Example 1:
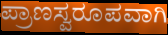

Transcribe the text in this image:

ಪ್ರಾಣಸ್ವರೂಪವಾಗಿ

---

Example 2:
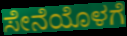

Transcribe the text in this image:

ಸೇನೆಯೊಳಗೆ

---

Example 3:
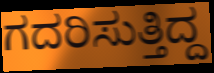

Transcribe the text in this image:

ಗದರಿಸುತ್ತಿದ್ದ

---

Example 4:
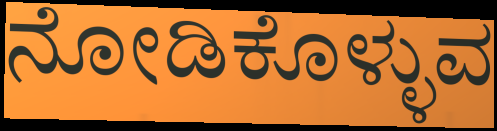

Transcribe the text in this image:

ನೋಡಿಕೊಳ್ಳುವ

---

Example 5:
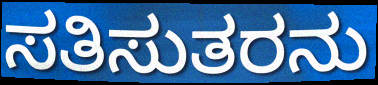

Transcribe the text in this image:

ಸತಿಸುತರನು